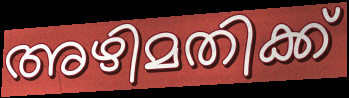
അഴിമതിക്ക്